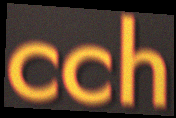
cch